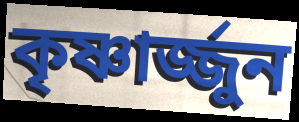
কৃষ্ণার্জ্জুন